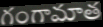
గంగామాత